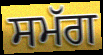
ਸਮੱਗ